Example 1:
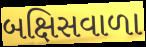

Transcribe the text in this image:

બક્ષિસવાળા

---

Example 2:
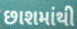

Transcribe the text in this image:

છાશમાંથી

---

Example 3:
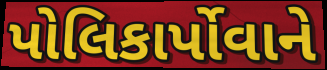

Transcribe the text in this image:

પોલિકાર્પોવાને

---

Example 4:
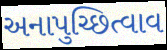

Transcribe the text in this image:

અનાપુચ્છિત્વાવ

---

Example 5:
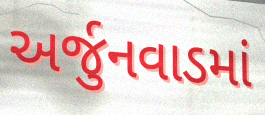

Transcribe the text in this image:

અર્જુનવાડમાં